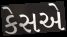
કેસએ